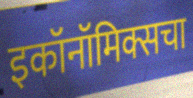
इकॉनॉमिक्सचा